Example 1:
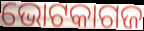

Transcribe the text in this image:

ଭୋଟକାଗଜ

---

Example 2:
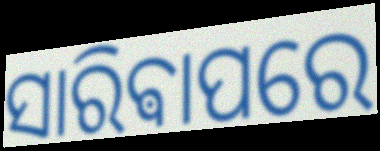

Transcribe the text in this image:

ସାରିଵାପରେ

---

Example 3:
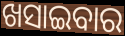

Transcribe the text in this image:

ଖସାଇବାର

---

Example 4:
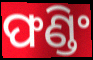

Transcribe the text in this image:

ଫଣ୍ଡିଂ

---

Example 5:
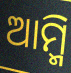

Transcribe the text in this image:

ଆମ୍ମି